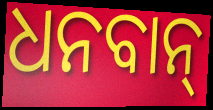
ଧନବାନ୍